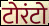
टोरंटो